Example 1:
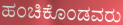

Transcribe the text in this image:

ಹಂಚಿಕೊಂಡವರು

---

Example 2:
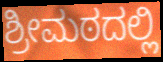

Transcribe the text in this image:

ಶ್ರೀಮಠದಲ್ಲಿ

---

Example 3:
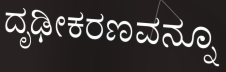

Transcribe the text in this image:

ದೃಢೀಕರಣವನ್ನೂ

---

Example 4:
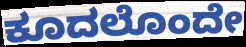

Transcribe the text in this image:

ಕೂದಲೊಂದೇ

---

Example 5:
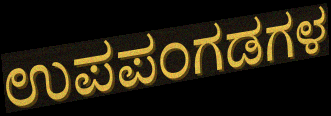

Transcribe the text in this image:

ಉಪಪಂಗಡಗಳ